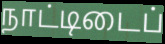
நாட்டிடைப்